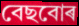
বেছবোৰ